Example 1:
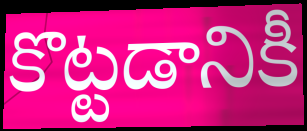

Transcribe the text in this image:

కొట్టడానికీ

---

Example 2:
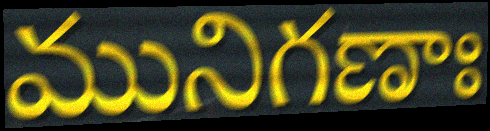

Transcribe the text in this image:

మునిగణాః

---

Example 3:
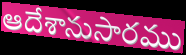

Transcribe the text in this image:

ఆదేశానుసారము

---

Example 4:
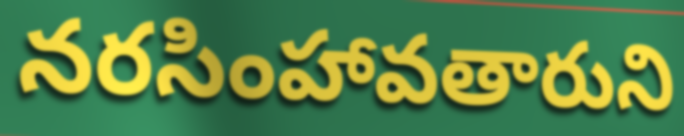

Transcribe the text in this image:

నరసింహావతారుని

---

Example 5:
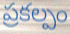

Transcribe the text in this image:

ప్రకల్పం